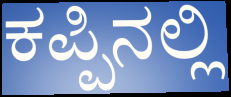
ಕಪ್ಪಿನಲ್ಲಿ